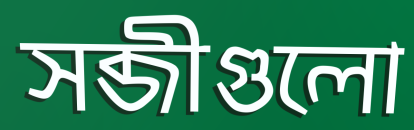
সব্জীগুলো